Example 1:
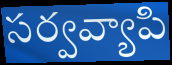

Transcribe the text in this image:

సర్వవ్యాపి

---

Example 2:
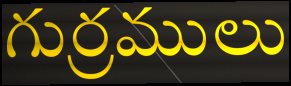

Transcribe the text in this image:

గుర్రములు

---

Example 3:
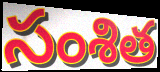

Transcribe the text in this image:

సంశిత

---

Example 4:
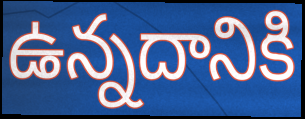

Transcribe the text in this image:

ఉన్నదానికి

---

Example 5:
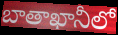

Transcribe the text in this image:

బాతాఖానీలో